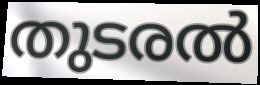
തുടരൽ